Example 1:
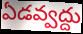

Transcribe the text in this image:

ఏడవ్వద్దు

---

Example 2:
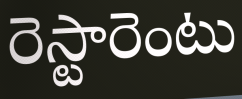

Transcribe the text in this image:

రెస్టారెంటు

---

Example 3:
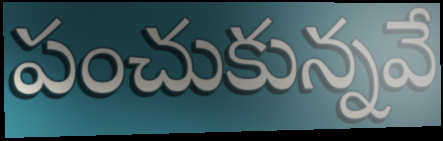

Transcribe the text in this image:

పంచుకున్నవే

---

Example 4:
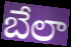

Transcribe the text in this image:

బేలా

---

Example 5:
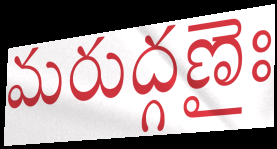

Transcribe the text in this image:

మరుద్గణైః